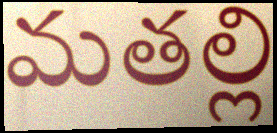
మతల్లి